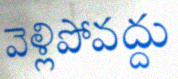
వెళ్లిపోవద్దు